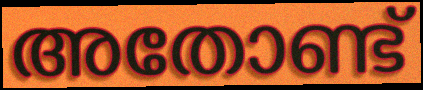
അതോണ്ട്